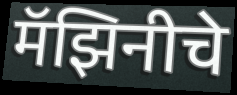
मॅझिनीचे